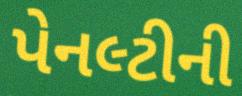
પેનલ્ટીની